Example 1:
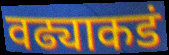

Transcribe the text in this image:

वढ्याकडं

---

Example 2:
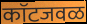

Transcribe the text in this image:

कॉटजवळ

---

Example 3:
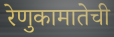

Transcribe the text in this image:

रेणुकामातेची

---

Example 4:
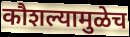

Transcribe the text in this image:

कौशल्यामुळेच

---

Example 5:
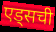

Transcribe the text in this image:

एड्सची